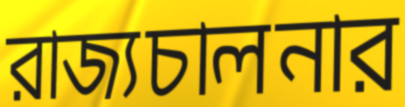
রাজ্যচালনার